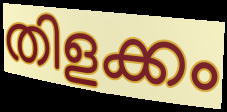
തിളക്കം